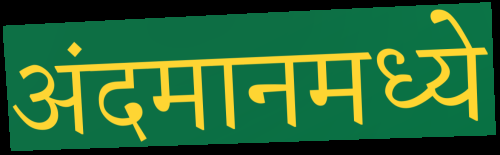
अंदमानमध्ये